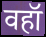
वहॉ